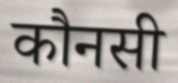
कौनसी